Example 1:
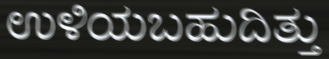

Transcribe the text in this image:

ಉಳಿಯಬಹುದಿತ್ತು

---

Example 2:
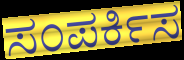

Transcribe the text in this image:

ಸಂಪರ್ಕಿಸ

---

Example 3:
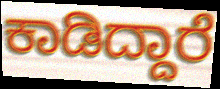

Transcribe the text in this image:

ಕಾಡಿದ್ದಾರೆ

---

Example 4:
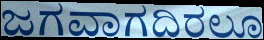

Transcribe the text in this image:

ಜಗವಾಗದಿರಲೂ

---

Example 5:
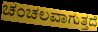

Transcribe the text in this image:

ಚಂಚಲವಾಗುತ್ತದೆ